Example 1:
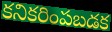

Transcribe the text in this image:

కనికరింపబడక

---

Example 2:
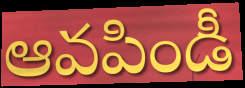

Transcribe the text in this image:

ఆవపిండీ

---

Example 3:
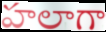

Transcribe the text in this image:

హలాగా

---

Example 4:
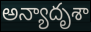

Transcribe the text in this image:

అన్యాదృశా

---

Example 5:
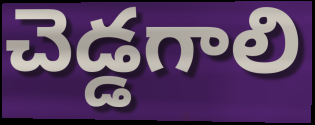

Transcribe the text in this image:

చెడ్డగాలి